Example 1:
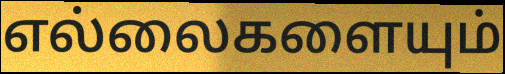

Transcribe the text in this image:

எல்லைகளையும்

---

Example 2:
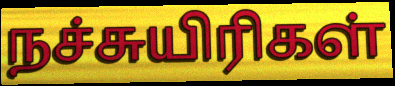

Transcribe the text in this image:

நச்சுயிரிகள்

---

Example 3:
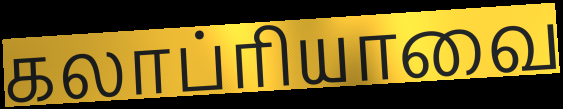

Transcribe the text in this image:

கலாப்ரியாவை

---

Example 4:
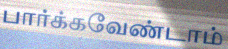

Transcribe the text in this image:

பார்க்கவேண்டாம்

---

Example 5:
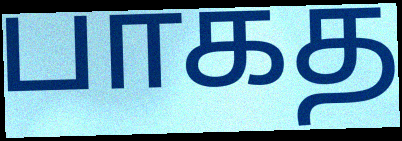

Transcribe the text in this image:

பாகத